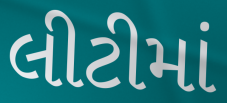
લીટીમાં